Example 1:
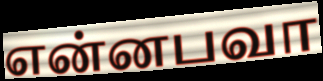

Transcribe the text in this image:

என்னபவா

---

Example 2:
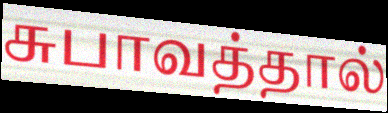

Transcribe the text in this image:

சுபாவத்தால்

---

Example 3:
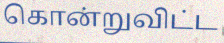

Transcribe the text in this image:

கொன்றுவிட்ட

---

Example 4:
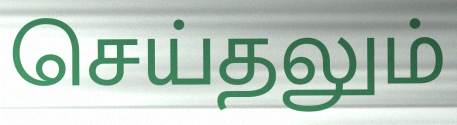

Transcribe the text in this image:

செய்தலும்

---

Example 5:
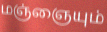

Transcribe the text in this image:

மஞ்ஞையும்